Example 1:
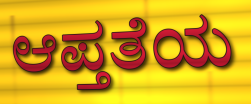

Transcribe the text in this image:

ಆಪ್ತತೆಯ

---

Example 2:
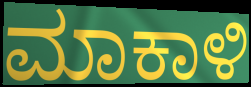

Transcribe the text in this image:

ಮಾಕಾಳಿ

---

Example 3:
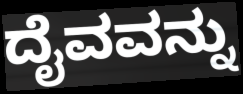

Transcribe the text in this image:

ದೈವವನ್ನು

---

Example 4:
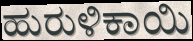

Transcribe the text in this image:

ಹುರುಳಿಕಾಯಿ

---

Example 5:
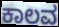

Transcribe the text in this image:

ಕಾಲವ